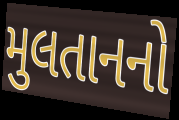
મુલતાનનો